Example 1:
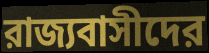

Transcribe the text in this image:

রাজ্যবাসীদের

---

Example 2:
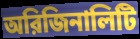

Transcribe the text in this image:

অরিজিনালিটি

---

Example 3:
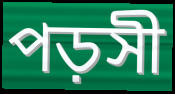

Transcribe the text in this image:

পড়সী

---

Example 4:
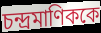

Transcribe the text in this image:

চন্দ্রমাণিককে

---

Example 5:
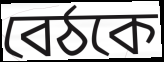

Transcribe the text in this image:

বেঠকে